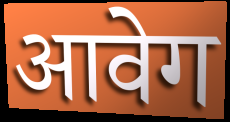
आवेग